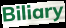
Biliary